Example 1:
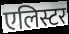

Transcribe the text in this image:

एलिस्टर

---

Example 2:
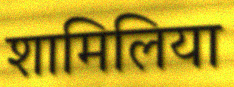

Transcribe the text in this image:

शामिलिया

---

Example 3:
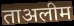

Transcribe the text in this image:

ताअलीम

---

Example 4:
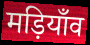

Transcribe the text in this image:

मड़ियाँव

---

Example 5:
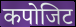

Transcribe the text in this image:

कपोजिट